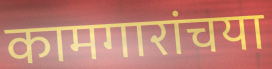
कामगारांचया